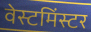
वेस्‍टमिंस्‍टर